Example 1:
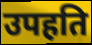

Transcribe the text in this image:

उपहति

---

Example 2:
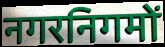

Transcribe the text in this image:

नगरनिगमों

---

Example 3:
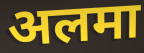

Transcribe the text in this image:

अलमा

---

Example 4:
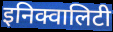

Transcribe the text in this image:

इनिक्वालिटी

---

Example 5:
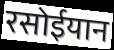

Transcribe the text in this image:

रसोईयान